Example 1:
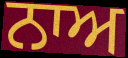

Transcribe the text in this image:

ਨਾਅ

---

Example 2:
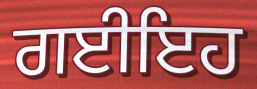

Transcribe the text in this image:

ਗਈਇਹ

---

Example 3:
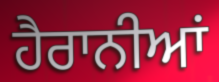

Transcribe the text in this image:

ਹੈਰਾਨੀਆਂ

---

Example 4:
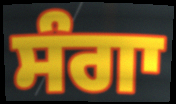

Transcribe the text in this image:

ਸੰਗਾ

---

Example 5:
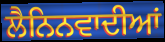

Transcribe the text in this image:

ਲੈਨਿਨਵਾਦੀਆਂ